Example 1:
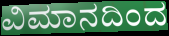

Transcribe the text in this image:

ವಿಮಾನದಿಂದ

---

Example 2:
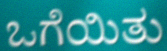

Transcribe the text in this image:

ಒಗೆಯಿತು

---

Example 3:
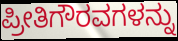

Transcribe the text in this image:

ಪ್ರೀತಿಗೌರವಗಳನ್ನು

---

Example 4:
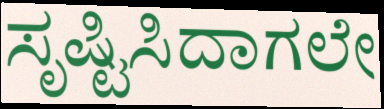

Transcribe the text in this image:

ಸೃಷ್ಟಿಸಿದಾಗಲೇ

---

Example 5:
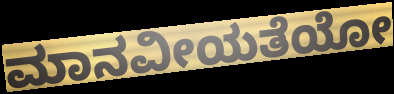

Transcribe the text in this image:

ಮಾನವೀಯತೆಯೋ